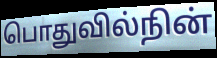
பொதுவில்நின்